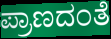
ಪ್ರಾಣದಂತೆ